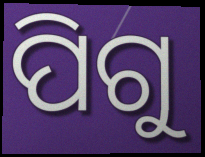
ପିଗୁ